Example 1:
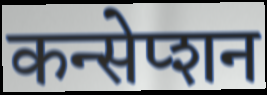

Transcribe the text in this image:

कन्सेप्शन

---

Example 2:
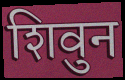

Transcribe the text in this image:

शिवुन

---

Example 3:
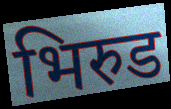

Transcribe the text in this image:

भिरुड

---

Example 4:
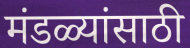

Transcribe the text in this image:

मंडळ्यांसाठी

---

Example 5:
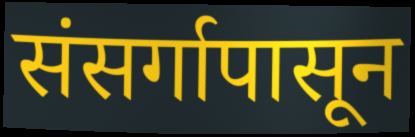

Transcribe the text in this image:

संसर्गापासून